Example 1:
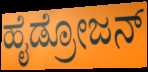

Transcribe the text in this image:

ಹೈಡ್ರೋಜನ್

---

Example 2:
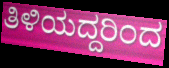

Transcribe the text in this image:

ತಿಳಿಯದ್ದರಿಂದ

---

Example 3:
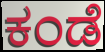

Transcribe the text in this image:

ಕಂಡೆ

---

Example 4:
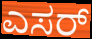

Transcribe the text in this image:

ಎಸರ್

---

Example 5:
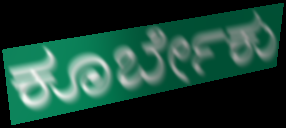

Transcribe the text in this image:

ಕೂರ್ಬೇಕು